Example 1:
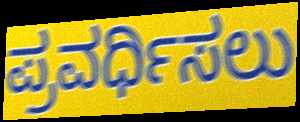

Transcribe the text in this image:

ಪ್ರವರ್ಧಿಸಲು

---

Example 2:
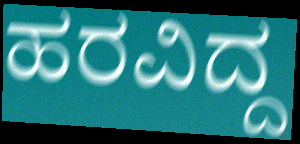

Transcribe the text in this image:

ಹರವಿದ್ದ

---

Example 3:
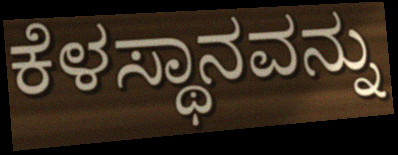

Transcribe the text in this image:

ಕೆಳಸ್ಥಾನವನ್ನು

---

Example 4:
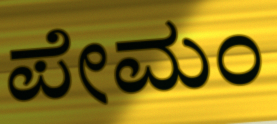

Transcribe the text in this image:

ಪೇಮಂ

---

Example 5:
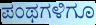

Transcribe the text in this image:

ಪಂಥಗಳಿಗೂ